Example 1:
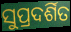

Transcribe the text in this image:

ସୁପ୍ରଦର୍ଶିତ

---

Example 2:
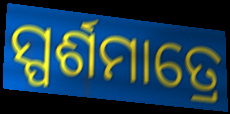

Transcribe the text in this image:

ସ୍ପର୍ଶମାତ୍ରେ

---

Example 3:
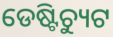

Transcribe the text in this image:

ଡେଷ୍ଟିଚ୍ୟୁଟ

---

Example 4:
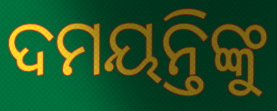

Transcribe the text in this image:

ଦମୟନ୍ତିଙ୍କୁ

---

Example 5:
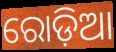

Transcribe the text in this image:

ରୋଡ଼ିଆ